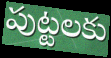
పుట్టలకు